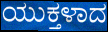
ಯುಕ್ತಳಾದ